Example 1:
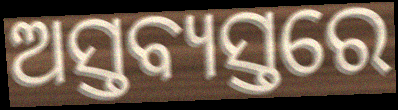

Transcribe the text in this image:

ଅସ୍ତବ୍ୟସ୍ତରେ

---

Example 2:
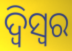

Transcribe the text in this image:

ଦ୍ଵିସ୍ଵର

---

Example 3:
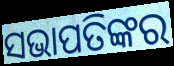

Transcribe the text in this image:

ସଭାପତିଙ୍କର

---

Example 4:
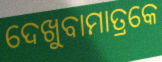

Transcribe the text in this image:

ଦେଖୁବାମାତ୍ରକେ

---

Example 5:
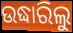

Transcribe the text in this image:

ଉଦ୍ଧାରିଲୁ